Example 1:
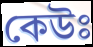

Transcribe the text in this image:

কেউঃ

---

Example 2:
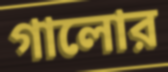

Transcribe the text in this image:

গালোর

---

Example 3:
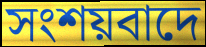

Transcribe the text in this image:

সংশয়বাদে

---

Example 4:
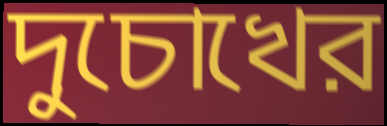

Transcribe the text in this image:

দুচোখের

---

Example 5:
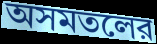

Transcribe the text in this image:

অসমতলের